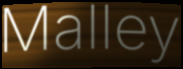
Malley